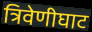
त्रिवेणीघाट